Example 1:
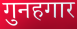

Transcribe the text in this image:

गुनहगार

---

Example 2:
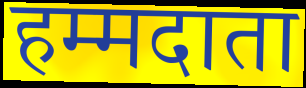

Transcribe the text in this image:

हम्मदाता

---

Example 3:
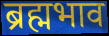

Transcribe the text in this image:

ब्रह्मभाव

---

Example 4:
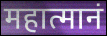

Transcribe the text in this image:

महात्मानं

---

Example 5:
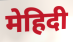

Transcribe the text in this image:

मेहिदी